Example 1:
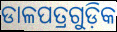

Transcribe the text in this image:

ଡାଳପତ୍ରଗୁଡ଼ିକ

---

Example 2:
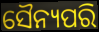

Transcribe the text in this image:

ସୈନ୍ୟପରି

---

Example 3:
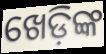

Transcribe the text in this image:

ଖେଡ଼ିଙ୍କ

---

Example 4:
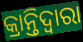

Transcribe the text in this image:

କ୍ରାନ୍ତିଦ୍ୱାରା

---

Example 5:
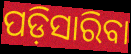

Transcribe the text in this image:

ପଡ଼ିସାରିବା